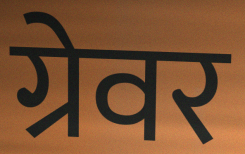
ग्रेवर